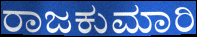
ರಾಜಕುಮಾರಿ